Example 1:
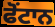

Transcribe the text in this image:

ਫੋਂਟਾਨ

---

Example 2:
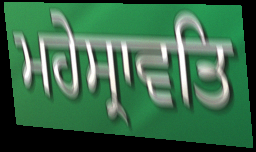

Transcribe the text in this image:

ਮਹੇਸ੍ਰਾਵਤਿ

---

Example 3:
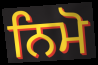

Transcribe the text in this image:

ਨਿਮੋ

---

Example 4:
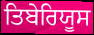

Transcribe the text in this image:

ਤਿਬੇਰਿਯੂਸ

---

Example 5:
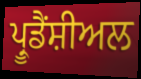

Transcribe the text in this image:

ਪ੍ਰੂਡੈਂਸ਼ੀਅਲ